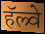
हॅल्वे